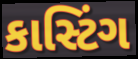
કાસ્ટિંગ